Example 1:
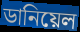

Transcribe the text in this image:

ডানিয়েল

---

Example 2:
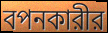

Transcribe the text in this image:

বপনকারীর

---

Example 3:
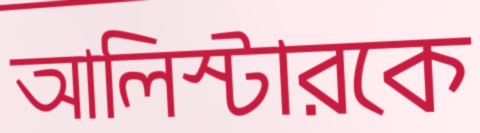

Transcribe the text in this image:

আলিস্টারকে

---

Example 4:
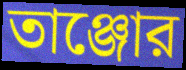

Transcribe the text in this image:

তাঞ্জোর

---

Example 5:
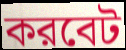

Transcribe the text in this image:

করবেট